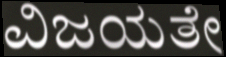
ವಿಜಯತೇ